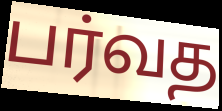
பர்வத